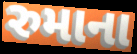
રુમાના